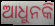
ଆଧୁନକି